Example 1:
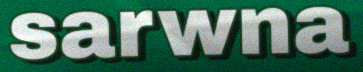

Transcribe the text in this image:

sarwna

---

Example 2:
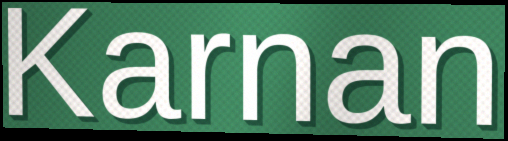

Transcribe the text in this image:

Karnan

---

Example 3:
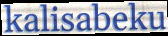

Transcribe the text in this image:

kalisabeku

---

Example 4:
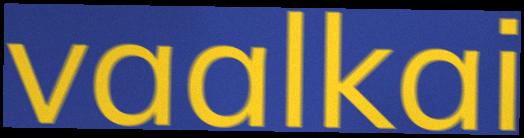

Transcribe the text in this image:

vaalkai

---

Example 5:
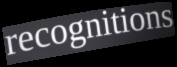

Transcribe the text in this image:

recognitions